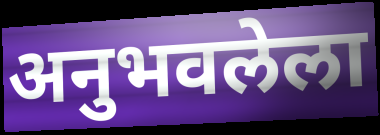
अनुभवलेला